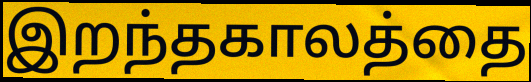
இறந்தகாலத்தை